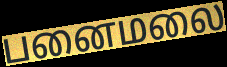
பனைமலை